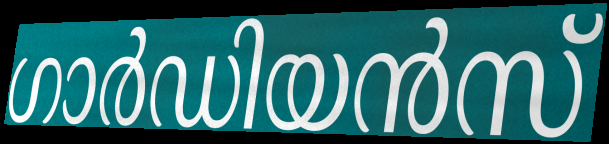
ഗാർഡിയൻസ്